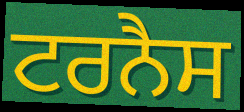
ਟਰਨੈਸ